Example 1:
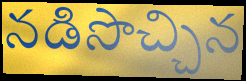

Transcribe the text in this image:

నడిసొచ్చిన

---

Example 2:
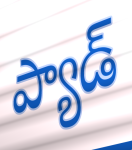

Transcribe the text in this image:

ప్యాడ్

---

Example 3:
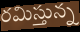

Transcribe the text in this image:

రమిస్తున్న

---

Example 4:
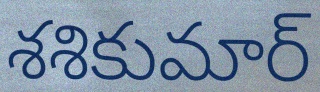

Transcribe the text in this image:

శశికుమార్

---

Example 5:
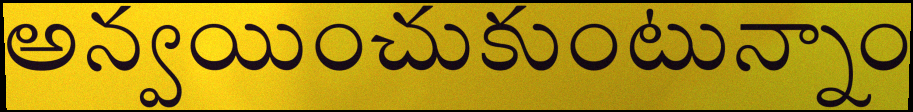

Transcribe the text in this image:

అన్వయించుకుంటున్నాం